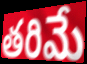
తరిమే